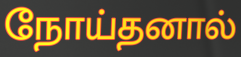
நோய்தனால்